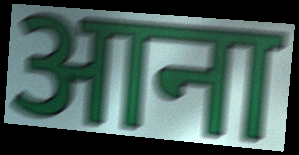
आना